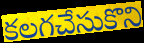
కలగచేసుకొని